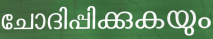
ചോദിപ്പിക്കുകയും